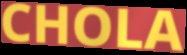
CHOLA